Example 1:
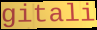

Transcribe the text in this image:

gitali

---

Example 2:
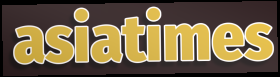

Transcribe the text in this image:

asiatimes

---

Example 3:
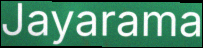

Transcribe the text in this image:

Jayarama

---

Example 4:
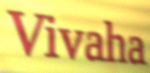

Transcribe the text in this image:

Vivaha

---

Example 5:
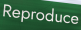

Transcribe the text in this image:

Reproduce